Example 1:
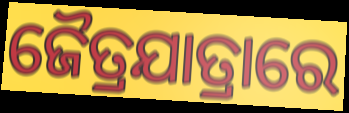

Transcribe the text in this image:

ଜୈତ୍ରଯାତ୍ରାରେ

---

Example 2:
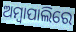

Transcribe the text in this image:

ଅମ୍ବାପାଲିରେ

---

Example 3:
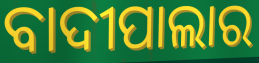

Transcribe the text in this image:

ବାଦୀପାଲାର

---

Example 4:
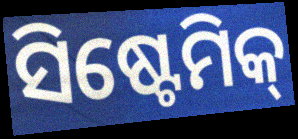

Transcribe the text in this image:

ସିଷ୍ଟେମିକ୍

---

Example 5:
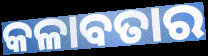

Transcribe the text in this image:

କଳାବତାର